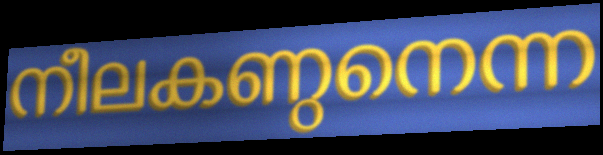
നീലകണ്ഠനെന്ന